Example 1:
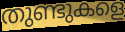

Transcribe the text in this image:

തുണ്ടുകളെ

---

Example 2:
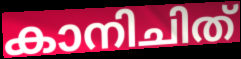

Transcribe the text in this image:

കാനിചിത്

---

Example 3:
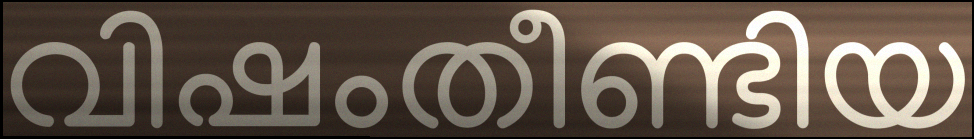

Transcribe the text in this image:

വിഷംതീണ്ടിയ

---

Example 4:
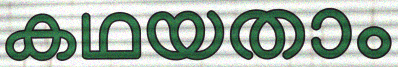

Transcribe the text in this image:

കഥയതാം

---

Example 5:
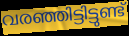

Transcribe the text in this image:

വരഞ്ഞിട്ടിട്ടുണ്ട്